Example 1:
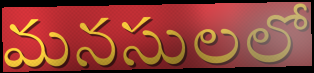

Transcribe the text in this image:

మనసులలో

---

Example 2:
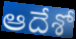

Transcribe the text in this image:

ఆదేశో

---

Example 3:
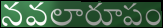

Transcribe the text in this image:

నవలారూపం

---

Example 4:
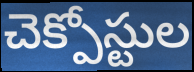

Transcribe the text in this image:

చెక్పోస్టుల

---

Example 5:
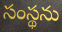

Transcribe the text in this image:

సంస్థను